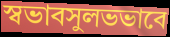
স্বভাবসুলভভাবে